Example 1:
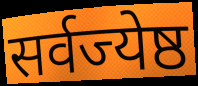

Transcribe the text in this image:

सर्वज्येष्ठ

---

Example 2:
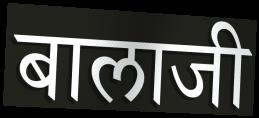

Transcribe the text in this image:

बालाजी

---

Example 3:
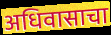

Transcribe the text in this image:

अधिवासाचा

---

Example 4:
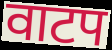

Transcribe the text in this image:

वाटप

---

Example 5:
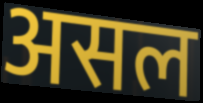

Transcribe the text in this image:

असल